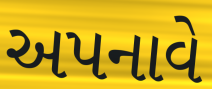
અપનાવે